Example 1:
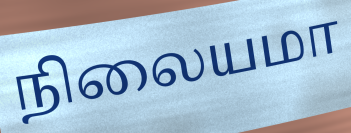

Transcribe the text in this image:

நிலையமா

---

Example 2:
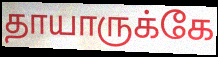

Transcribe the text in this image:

தாயாருக்கே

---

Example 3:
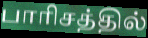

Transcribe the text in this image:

பாரிசத்தில்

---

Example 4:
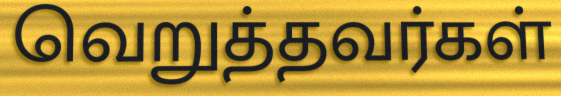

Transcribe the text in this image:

வெறுத்தவர்கள்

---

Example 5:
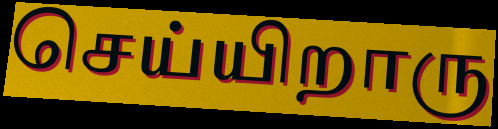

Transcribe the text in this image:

செய்யிறாரு